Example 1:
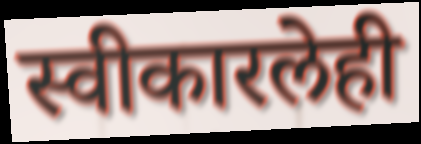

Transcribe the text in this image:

स्वीकारलेही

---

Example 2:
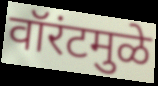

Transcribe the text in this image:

वॉरंटमुळे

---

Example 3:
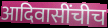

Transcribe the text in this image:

आदिवासींचीच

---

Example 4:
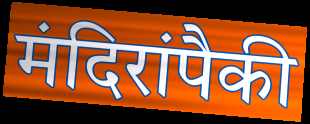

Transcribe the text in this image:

मंदिरांपैकी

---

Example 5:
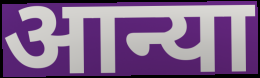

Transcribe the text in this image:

आन्या